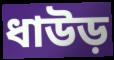
ধাউড়